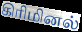
கிரிமினல்